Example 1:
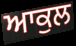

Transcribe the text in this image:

ਆਕੁਲ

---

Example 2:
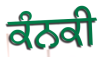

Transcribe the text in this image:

ਕੰਨਕੀ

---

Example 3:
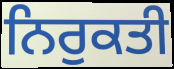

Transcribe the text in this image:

ਨਿਰੁਕਤੀ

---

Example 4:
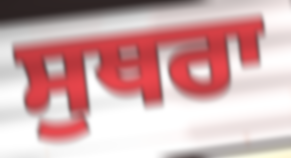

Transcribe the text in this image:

ਸੁਥਰਾ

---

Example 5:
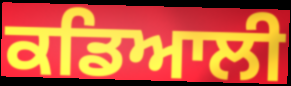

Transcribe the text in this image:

ਕਡਿਆਲੀ